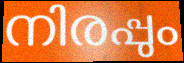
നിരപ്പും